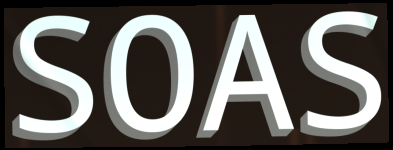
SOAS